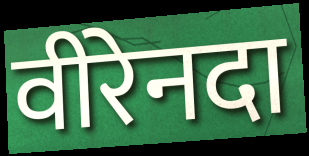
वीरेनदा